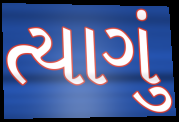
ત્યાગું